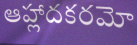
ఆహ్లాదకరమో